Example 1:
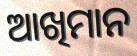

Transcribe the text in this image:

ଆଖିମାନ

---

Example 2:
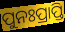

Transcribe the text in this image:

ପୁନଃପ୍ରାପ୍ତି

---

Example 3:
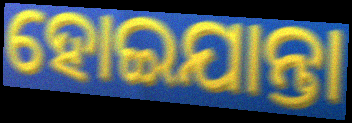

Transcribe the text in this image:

ହୋଇଯାନ୍ତା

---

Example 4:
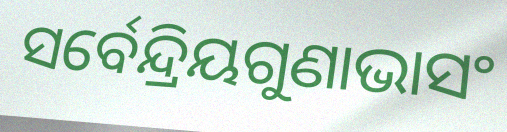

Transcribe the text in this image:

ସର୍ବେନ୍ଦ୍ରିୟଗୁଣାଭାସଂ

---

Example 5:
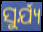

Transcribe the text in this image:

ସୁର୍ଯ୍ୟ